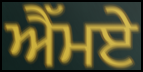
ਐੱਮਏ